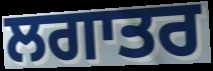
ਲਗਾਤਰ